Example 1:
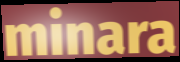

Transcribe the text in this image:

minara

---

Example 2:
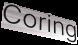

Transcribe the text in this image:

Coring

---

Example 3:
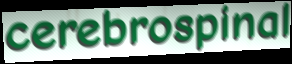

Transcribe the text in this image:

cerebrospinal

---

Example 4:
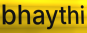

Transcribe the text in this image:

bhaythi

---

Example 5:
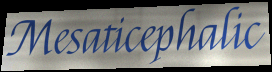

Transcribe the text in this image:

Mesaticephalic